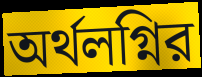
অর্থলগ্নির